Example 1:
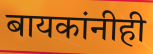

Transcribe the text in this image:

बायकांनीही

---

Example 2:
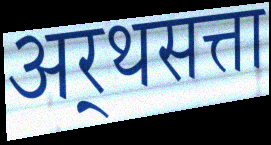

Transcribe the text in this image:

अर्थसत्ता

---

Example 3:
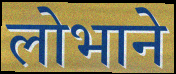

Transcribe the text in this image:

लोभाने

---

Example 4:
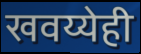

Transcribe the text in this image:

खवय्येही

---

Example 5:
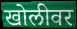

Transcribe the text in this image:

खोलीवर